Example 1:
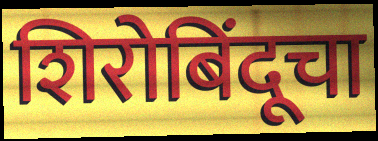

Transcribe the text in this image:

शिरोबिंदूचा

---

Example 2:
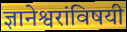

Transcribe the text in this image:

ज्ञानेश्वरांविषयी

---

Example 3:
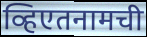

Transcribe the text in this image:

व्हिएतनामची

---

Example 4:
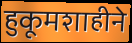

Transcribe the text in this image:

हुकूमशाहीने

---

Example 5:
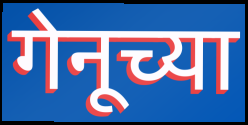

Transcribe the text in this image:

गेनूच्या